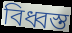
বিধ্বস্ত